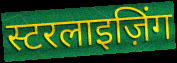
स्टरलाइज़िंग